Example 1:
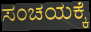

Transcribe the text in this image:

ಸಂಚಯಕ್ಕೆ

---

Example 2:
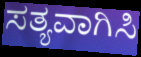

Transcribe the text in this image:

ಸತ್ಯವಾಗಿಸಿ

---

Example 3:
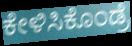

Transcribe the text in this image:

ಕೇಳಿಸಿಕೊಂಡ್ರೆ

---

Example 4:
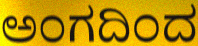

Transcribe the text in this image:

ಅಂಗದಿಂದ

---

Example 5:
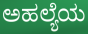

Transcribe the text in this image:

ಅಹಲ್ಯೆಯ